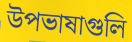
উপভাষাগুলি